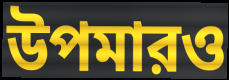
উপমারও